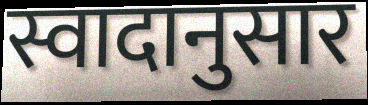
स्वादानुसार